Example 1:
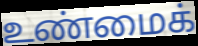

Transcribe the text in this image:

உண்மைக்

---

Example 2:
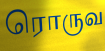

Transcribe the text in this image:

ரொருவ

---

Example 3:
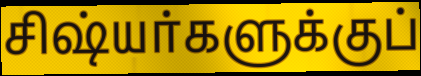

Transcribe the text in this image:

சிஷ்யர்களுக்குப்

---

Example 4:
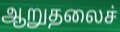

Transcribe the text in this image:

ஆறுதலைச்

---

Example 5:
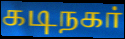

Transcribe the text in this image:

கடிநகர்